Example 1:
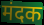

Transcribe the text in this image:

मंदक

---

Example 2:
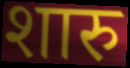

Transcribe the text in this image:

शारु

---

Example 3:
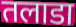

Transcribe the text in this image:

तलाडा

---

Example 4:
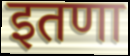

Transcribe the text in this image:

इतणा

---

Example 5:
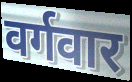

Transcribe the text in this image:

वर्गवार